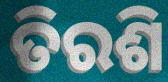
ତିରଶି